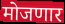
मोजणार